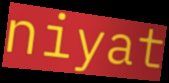
niyat